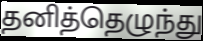
தனித்தெழுந்து